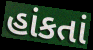
હાંકતાં